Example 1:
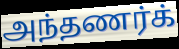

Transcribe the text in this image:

அந்தணர்க்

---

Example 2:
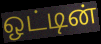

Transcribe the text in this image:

ஒட்டின்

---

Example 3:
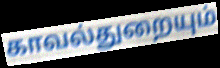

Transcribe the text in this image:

காவல்துறையும்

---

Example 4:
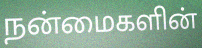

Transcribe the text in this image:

நன்மைகளின்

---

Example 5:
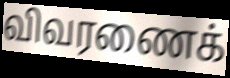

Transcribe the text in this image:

விவரணைக்